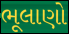
ભૂલાણો